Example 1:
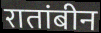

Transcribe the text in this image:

रातांबीन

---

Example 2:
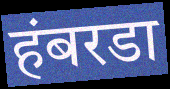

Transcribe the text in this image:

हंबरडा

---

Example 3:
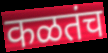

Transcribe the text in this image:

कळतंच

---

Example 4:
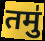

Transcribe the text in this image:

तमु॑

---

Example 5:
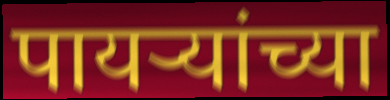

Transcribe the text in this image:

पायर्‍यांच्या